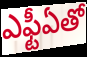
ఎఫ్టీఏతో